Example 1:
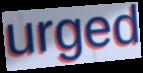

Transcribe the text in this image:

urged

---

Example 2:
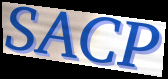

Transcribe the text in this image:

SACP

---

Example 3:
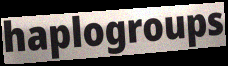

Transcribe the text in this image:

haplogroups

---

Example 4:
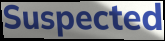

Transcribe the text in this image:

Suspected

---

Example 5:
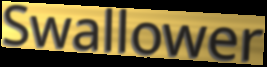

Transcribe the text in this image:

Swallower